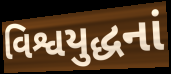
વિશ્વયુદ્ધનાં